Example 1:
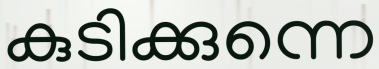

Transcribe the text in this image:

കുടിക്കുന്നെ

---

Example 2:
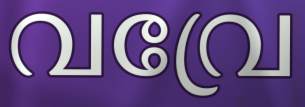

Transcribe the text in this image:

വവ്രേ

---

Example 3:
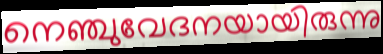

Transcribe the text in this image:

നെഞ്ചുവേദനയായിരുന്നു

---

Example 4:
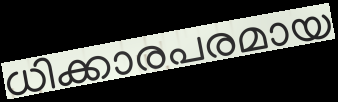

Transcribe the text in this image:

ധിക്കാരപരമായ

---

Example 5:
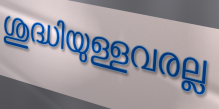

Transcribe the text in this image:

ശുദ്ധിയുള്ളവരല്ല